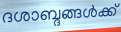
ദശാബ്ദങ്ങൾക്ക്